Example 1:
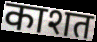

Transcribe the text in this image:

काशत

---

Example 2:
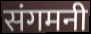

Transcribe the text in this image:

संगमनी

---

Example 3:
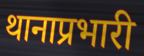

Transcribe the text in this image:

थानाप्रभारी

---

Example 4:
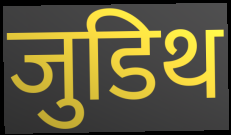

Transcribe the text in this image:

जुडिथ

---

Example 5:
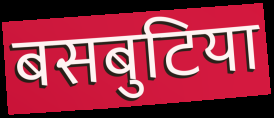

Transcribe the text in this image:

बसबुटिया